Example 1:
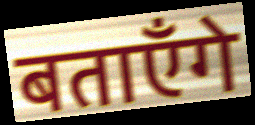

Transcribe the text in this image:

बताएँगे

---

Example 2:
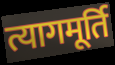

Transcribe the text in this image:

त्यागमूर्ति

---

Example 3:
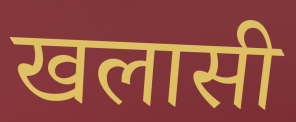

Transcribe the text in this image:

खलासी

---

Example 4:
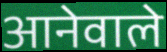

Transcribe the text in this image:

आनेवाले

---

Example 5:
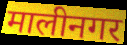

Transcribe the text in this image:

मालीनगर